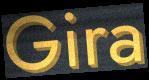
Gira